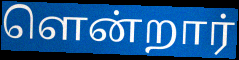
ளென்றார்